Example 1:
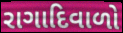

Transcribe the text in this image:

રાગાદિવાળો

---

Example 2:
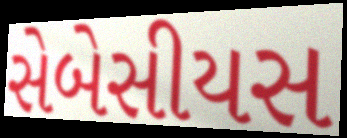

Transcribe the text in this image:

સેબેસીયસ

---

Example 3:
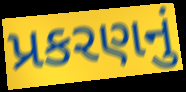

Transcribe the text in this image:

પ્રકરણનું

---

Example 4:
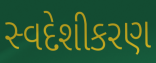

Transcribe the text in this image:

સ્વદેશીકરણ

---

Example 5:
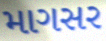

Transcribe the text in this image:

માગસર